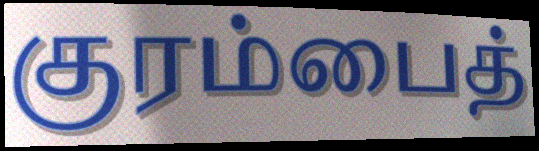
குரம்பைத்